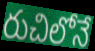
రుచిలోనే